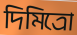
দিমিত্রো